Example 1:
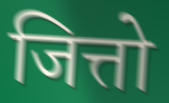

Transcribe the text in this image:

जित्तो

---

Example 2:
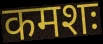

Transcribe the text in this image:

कमशः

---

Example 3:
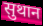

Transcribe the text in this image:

सुथान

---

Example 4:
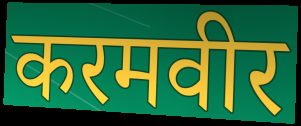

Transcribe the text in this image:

करमवीर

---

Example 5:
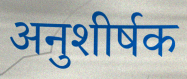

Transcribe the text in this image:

अनुशीर्षक